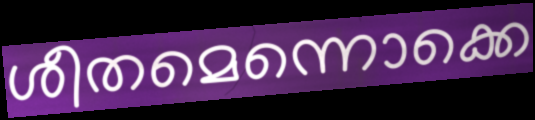
ശീതമെന്നൊക്കെ